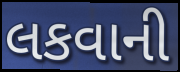
લકવાની